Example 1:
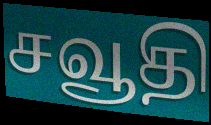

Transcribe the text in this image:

சவூதி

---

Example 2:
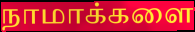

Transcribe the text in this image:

நாமாக்களை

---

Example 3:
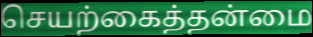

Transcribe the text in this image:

செயற்கைத்தன்மை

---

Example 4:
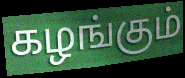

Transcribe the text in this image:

கழங்கும்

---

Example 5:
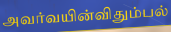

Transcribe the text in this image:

அவர்வயின்விதும்பல்